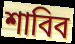
শাবিব